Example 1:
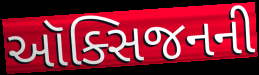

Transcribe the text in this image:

ઑક્સિજનની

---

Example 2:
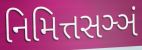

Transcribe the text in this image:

નિમિત્તસઞ્ઞં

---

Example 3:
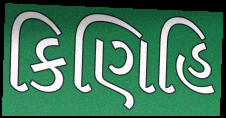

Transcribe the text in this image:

કિણિહિ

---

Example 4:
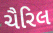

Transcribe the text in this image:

ચૈરિલ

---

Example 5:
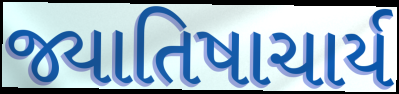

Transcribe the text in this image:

જ્યાતિષાચાર્ય